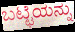
ಬಟ್ಟೆಯನ್ನು